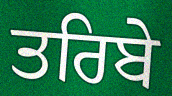
ਤਰਿਬੇ